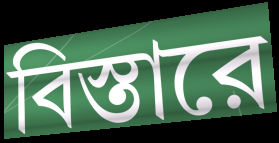
বিস্তারে